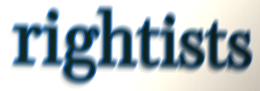
rightists